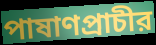
পাষাণপ্রাচীর